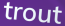
trout